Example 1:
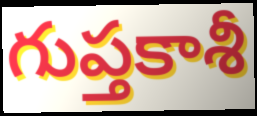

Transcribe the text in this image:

గుప్తకాశీ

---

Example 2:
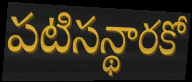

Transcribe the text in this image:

పటిసన్థారకో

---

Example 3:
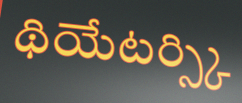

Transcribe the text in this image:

థియేటర్స్కి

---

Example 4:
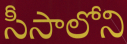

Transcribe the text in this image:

సీసాలోని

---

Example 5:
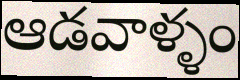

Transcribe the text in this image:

ఆడవాళ్ళం